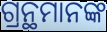
ଗ୍ରନ୍ଥମାନଙ୍କ